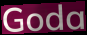
Goda